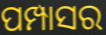
ପମ୍ପାସର